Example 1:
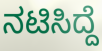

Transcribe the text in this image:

ನಟಿಸಿದ್ದೆ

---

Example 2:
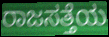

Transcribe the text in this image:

ರಾಜಸತ್ತೆಯ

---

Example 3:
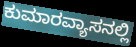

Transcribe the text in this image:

ಕುಮಾರವ್ಯಾಸನಲ್ಲಿ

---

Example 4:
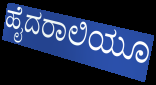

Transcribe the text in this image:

ಹೈದರಾಲಿಯೂ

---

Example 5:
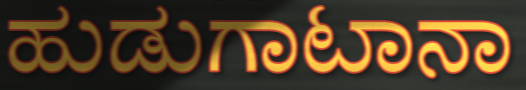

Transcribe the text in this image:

ಹುಡುಗಾಟಾನಾ